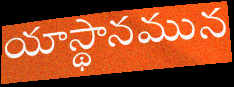
యాస్థానమున